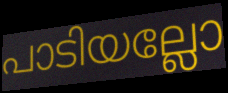
പാടിയല്ലോ